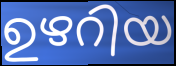
ഉഴറിയ